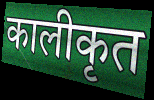
कालीकृत